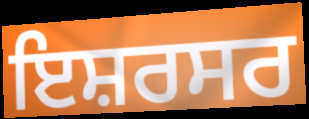
ਇਸ਼ਰਸਰ